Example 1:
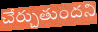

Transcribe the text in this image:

చేర్చుతుందని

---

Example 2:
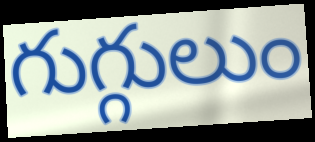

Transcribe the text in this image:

గుగ్గులుం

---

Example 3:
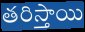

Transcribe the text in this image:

తరిస్తాయి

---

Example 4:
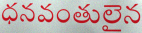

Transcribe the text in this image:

ధనవంతులైన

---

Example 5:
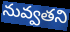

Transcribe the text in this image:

నువ్వతని